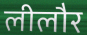
लीलौर